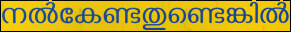
നൽകേണ്ടതുണ്ടെങ്കിൽ